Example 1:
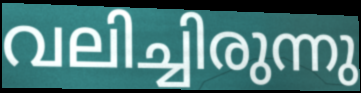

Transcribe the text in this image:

വലിച്ചിരുന്നു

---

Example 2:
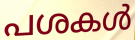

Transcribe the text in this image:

പശകൾ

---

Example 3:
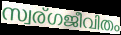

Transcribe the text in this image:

സ്വര്ഗജീവിതം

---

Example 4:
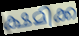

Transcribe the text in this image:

ക്ഷമിക്ക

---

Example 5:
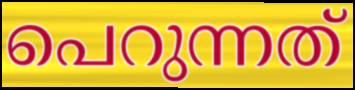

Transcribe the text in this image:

പെറുന്നത്